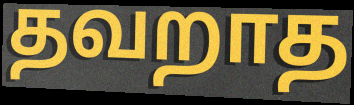
தவறாத